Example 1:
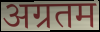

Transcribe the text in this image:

अग्रतम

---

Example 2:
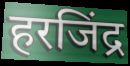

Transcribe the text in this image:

हरजिंद्र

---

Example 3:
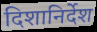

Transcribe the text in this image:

दिशानिर्देश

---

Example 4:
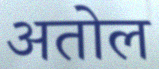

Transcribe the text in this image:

अतोल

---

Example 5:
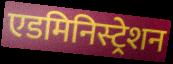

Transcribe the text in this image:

एडमिनिस्‍ट्रेशन